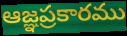
ఆజ్ఞప్రకారము